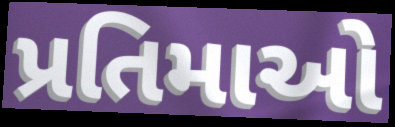
પ્રતિમાઓ